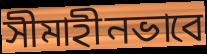
সীমাহীনভাবে